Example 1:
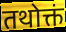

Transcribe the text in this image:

तथोक्तं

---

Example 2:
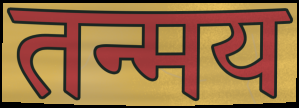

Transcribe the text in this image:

तन्‍मय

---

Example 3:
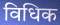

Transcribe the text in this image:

विधिक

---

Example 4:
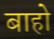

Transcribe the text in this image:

बाहो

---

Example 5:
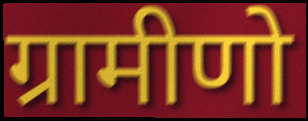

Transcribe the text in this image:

ग्रामीणो